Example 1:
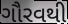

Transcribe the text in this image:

ગૌરવથી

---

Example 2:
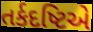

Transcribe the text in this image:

તર્કદષ્ટિએ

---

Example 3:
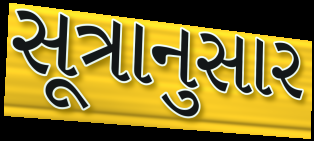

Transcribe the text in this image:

સૂત્રાનુસાર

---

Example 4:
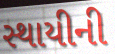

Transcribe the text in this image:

સ્થાયીની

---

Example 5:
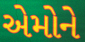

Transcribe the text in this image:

એમોને